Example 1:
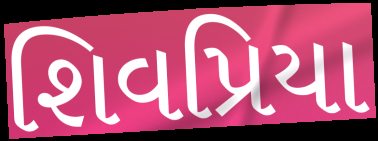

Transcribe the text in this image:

શિવપ્રિયા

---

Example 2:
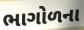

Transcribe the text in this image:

ભાગોળના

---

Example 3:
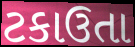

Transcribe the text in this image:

ટકાઉતા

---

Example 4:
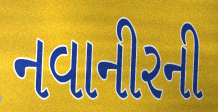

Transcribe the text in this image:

નવાનીરની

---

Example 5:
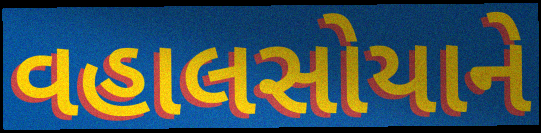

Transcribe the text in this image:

વહાલસોયાને